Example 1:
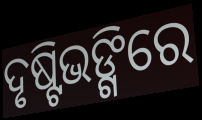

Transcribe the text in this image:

ଦୃଷ୍ଟିଭଙ୍ଗିରେ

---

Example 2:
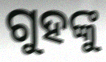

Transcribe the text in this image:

ଗୁହଙ୍କୁ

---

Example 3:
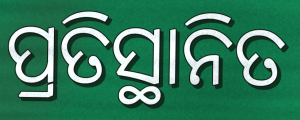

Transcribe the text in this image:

ପ୍ରତିସ୍ଥାନିତ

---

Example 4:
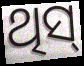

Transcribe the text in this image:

ଥିସ୍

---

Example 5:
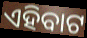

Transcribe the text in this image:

ଏହିବାଟ